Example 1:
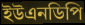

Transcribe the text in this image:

ইউএনডিপি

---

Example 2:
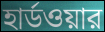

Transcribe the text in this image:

হার্ডওয়ার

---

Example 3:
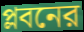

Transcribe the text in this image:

প্লবনের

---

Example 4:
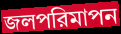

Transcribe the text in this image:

জলপরিমাপন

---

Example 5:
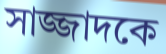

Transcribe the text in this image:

সাজ্জাদকে